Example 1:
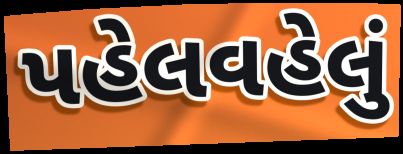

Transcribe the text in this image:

પહેલવહેલું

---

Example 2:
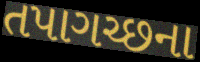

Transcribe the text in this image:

તપાગચ્છના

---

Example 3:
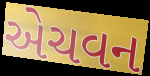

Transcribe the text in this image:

એચવન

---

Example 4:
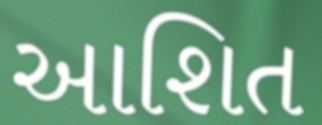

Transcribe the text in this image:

આશિત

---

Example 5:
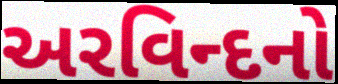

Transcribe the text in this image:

અરવિન્દનો